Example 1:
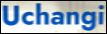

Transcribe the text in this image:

Uchangi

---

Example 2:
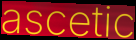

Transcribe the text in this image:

ascetic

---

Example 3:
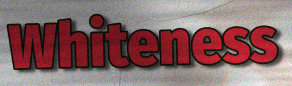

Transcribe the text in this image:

Whiteness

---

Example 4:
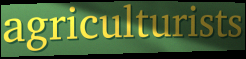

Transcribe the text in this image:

agriculturists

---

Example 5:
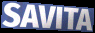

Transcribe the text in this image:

SAVITA